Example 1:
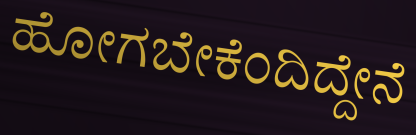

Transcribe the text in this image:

ಹೋಗಬೇಕೆಂದಿದ್ದೇನೆ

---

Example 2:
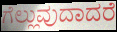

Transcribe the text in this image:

ಗೆಲ್ಲುವುದಾದರೆ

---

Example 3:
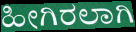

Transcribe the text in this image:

ಹೀಗಿರಲಾಗಿ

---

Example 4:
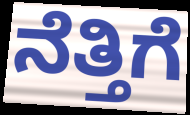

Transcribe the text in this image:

ನೆತ್ತಿಗೆ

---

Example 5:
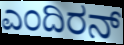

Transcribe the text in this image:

ಎಂದಿರನ್